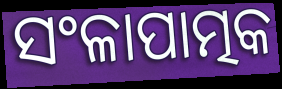
ସଂଳାପାତ୍ମକ